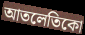
আতলেতিকো